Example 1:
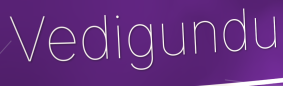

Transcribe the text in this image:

Vedigundu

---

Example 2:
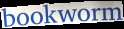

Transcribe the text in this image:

bookworm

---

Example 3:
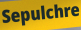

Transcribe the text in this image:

Sepulchre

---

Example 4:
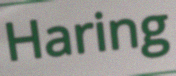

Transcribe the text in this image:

Haring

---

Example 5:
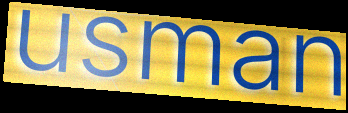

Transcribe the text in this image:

usman